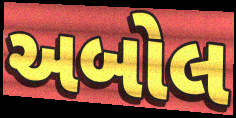
અબોલ